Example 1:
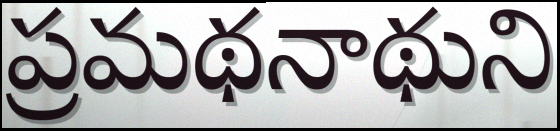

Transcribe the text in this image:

ప్రమథనాథుని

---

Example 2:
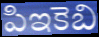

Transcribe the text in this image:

పిఇకెబి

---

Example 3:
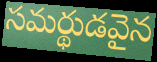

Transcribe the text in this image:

సమర్థుడవైన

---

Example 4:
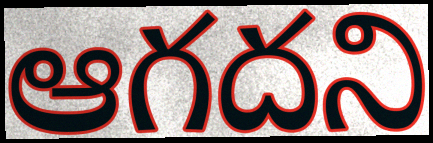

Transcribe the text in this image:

ఆగదని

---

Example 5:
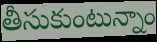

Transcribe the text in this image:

తీసుకుంటున్నాం